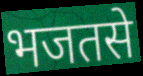
भजतसे